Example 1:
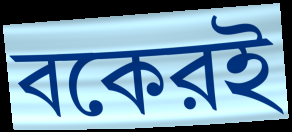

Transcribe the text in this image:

বকেরই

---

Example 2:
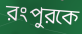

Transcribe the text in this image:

রংপুরকে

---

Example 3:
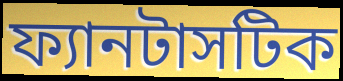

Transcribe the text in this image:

ফ্যানটাসটিক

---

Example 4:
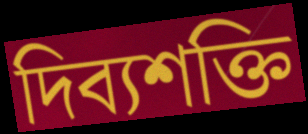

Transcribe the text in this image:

দিব্যশক্তি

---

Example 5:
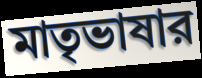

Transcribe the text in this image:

মাতৃভাষার